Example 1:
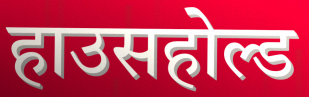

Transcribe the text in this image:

हाउसहोल्ड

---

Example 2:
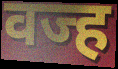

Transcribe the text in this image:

वज्ह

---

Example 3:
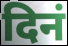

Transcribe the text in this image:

दिनं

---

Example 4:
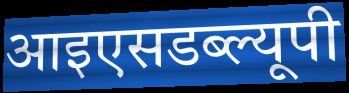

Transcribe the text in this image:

आइएसडब्ल्यूपी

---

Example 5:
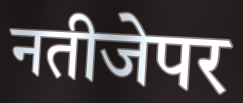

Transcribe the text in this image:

नतीजेपर